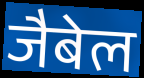
जैबेल